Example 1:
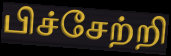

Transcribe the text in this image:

பிச்சேற்றி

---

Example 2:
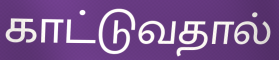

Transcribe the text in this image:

காட்டுவதால்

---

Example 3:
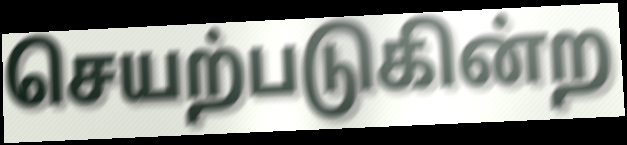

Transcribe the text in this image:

செயற்படுகின்ற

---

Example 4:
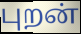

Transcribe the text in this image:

புறன்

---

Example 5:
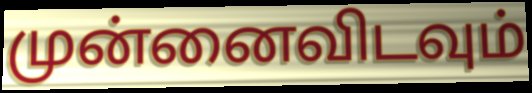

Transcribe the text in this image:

முன்னைவிடவும்